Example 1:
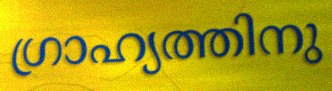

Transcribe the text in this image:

ഗ്രാഹ്യത്തിനു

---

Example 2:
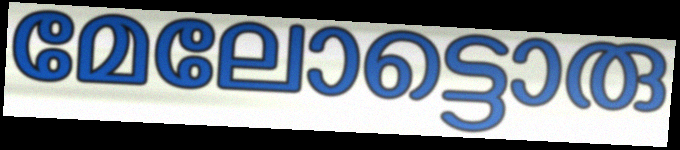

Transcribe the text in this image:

മേലോട്ടൊരു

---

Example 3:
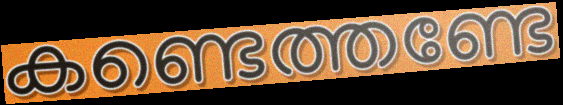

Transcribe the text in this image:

കണ്ടെത്തണ്ടേ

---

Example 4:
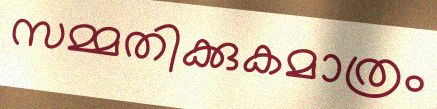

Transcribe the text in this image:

സമ്മതിക്കുകമാത്രം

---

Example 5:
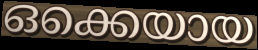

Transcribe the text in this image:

ഒക്കെയായ